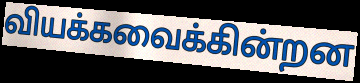
வியக்கவைக்கின்றன